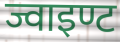
ज्वाइण्ट